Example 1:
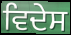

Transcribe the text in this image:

ਵਿਦੇਸ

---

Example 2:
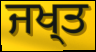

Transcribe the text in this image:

ਜਖ੍ਤ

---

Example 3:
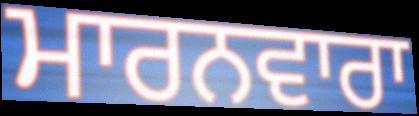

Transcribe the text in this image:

ਮਾਰਨਵਾਰਾ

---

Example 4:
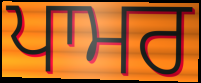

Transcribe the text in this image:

ਪਾਮਰ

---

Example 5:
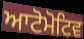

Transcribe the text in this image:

ਆਟੋਮੋਟਿਵ